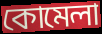
কোমেলা